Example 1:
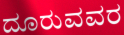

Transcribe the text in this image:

ದೂರುವವರ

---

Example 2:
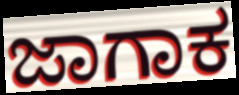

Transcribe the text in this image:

ಜಾಗಾಕ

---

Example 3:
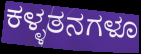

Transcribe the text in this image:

ಕಳ್ಳತನಗಳೂ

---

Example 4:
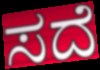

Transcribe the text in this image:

ಸದೆ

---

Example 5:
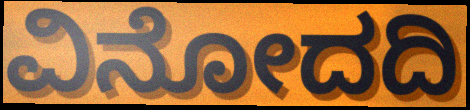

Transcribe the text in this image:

ವಿನೋದದಿ